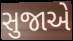
સુજાએ